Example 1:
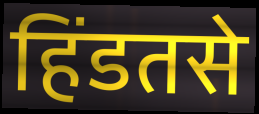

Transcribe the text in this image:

हिंडतसे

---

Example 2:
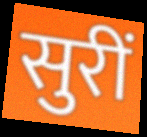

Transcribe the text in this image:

सुरीं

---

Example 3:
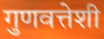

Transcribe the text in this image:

गुणवत्तेशी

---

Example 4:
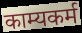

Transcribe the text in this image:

काम्यकर्म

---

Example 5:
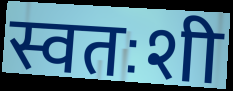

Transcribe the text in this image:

स्वतःशी